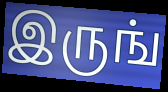
இருங்